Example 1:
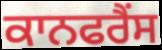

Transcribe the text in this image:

ਕਾਨਫਰੈਂਸ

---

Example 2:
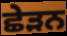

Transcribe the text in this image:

ਛੇੜਨ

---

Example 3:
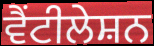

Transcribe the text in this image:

ਵੈਂਟੀਲੇਸ਼ਨ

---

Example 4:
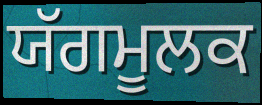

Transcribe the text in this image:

ਯੱਗਮੂਲਕ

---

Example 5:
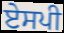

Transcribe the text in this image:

ਏਸਪੀ